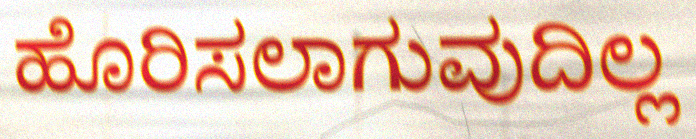
ಹೊರಿಸಲಾಗುವುದಿಲ್ಲ